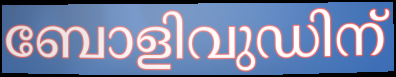
ബോളിവുഡിന്